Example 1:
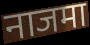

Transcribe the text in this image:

नाजमा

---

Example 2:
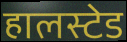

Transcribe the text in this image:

हालस्टेड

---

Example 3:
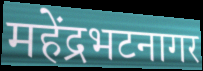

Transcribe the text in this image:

महेंद्रभटनागर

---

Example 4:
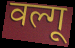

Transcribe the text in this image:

वल्गू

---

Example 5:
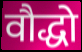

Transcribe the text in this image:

वौद्धो